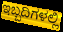
ಇಬ್ಬದಿಗಳಲ್ಲಿ